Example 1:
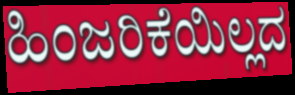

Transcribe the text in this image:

ಹಿಂಜರಿಕೆಯಿಲ್ಲದ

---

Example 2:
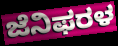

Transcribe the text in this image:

ಜೆನಿಫರಳ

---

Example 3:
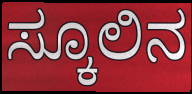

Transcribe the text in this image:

ಸ್ಕೂಲಿನ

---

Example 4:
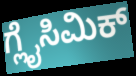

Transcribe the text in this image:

ಗ್ಲೈಸಿಮಿಕ್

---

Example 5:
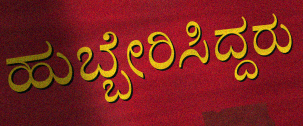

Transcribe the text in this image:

ಹುಬ್ಬೇರಿಸಿದ್ದರು